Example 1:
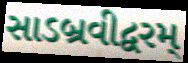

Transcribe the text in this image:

સાડબ્રવીદ્વરમ્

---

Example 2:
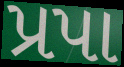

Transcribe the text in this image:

પ્રપા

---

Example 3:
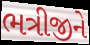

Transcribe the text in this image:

ભત્રીજીને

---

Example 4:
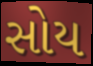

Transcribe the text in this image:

સોય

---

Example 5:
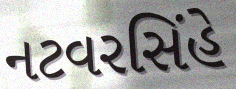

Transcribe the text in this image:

નટવરસિંહે